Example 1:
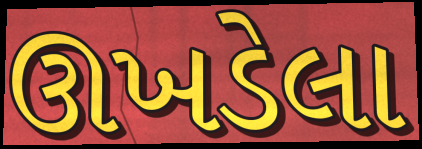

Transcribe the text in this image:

ઊખડેલા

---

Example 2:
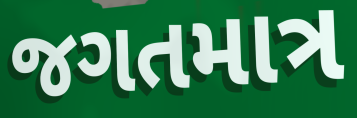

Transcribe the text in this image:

જગતમાત્ર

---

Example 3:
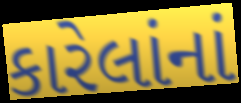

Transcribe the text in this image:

કારેલાંનાં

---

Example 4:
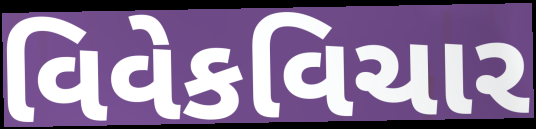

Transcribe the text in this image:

વિવેકવિચાર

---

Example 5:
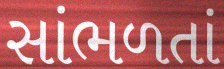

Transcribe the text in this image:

સાંભળતાં